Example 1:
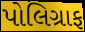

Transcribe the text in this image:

પોલિગ્રાફ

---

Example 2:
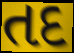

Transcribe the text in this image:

તદ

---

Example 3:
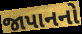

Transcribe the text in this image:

જાપાનનો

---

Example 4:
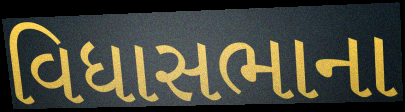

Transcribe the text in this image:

વિધાસભાના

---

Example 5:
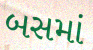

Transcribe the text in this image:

બસમાં